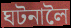
ঘটনালৈ